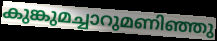
കുങ്കുമച്ചാറുമണിഞ്ഞു